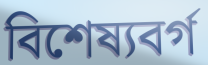
বিশেষ্যবর্গ